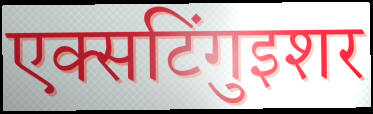
एक्सटिंगुइशर